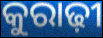
କୁରାଢ଼ୀ